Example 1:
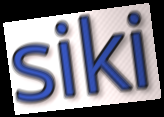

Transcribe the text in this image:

siki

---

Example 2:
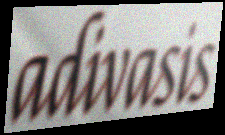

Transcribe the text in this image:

adivasis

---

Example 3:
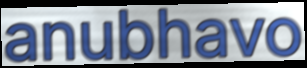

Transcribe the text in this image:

anubhavo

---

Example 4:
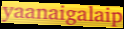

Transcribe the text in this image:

yaanaigalaip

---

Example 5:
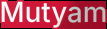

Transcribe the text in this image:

Mutyam